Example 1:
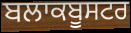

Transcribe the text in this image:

ਬਲਾਕਬੂਸਟਰ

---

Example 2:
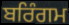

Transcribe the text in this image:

ਬਰਿੰਗਮ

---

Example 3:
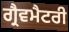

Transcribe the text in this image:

ਗ੍ਰੈਵਮੈਟਰੀ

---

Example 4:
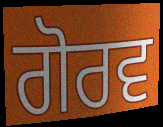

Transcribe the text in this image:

ਗੋਰਵ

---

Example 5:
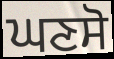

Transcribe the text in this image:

ਘਣਸੋ